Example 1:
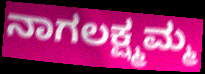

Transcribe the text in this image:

ನಾಗಲಕ್ಷ್ಮಮ್ಮ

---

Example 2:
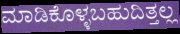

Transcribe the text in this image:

ಮಾಡಿಕೊಳ್ಳಬಹುದಿತ್ತಲ್ಲ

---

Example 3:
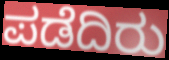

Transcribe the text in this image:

ಪಡೆದಿರು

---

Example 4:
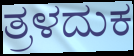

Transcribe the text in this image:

ತ್ರಳದುಕ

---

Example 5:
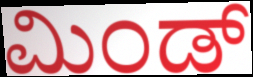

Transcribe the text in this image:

ಮಿಂಡ್